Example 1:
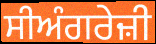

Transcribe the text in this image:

ਸੀਅੰਗਰੇਜ਼ੀ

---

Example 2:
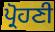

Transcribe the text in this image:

ਪ੍ਰੋਹਣੀ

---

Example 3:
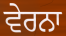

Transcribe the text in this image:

ਵੇਰਨਾ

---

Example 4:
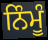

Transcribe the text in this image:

ਨਿੰਮੂੰ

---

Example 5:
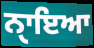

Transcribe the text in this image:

ਨੑਾਇਆ